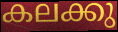
കലക്കു